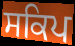
ਸਕਿਪ